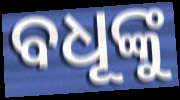
ବଧୂଙ୍କୁ